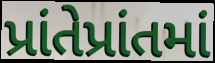
પ્રાંતેપ્રાંતમાં